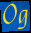
Og